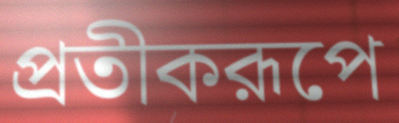
প্রতীকরূপে